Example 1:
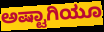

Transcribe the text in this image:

ಅಷ್ಟಾಗಿಯೂ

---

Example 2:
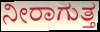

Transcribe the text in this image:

ನೀರಾಗುತ್ತ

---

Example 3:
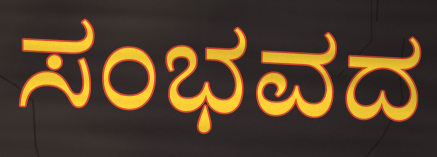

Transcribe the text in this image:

ಸಂಭವದ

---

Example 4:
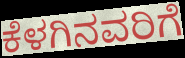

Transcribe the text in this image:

ಕೆಳಗಿನವರಿಗೆ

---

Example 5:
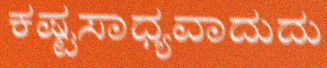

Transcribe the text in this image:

ಕಷ್ಟಸಾಧ್ಯವಾದುದು